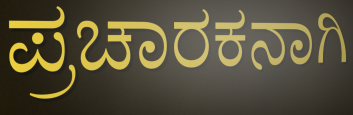
ಪ್ರಚಾರಕನಾಗಿ